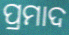
ପ୍ରମାଦ